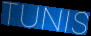
TUNIS